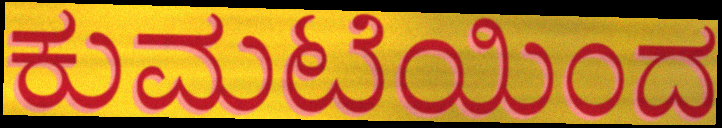
ಕುಮಟೆಯಿಂದ